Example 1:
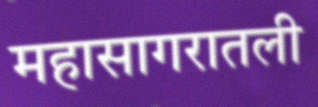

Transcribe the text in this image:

महासागरातली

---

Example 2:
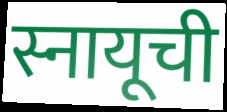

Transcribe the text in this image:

स्नायूची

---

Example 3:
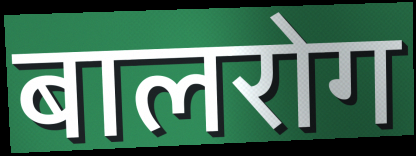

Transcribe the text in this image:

बालरोग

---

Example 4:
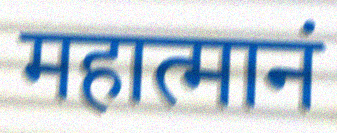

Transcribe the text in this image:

महात्मानं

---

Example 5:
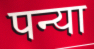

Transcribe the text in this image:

पन्या